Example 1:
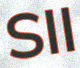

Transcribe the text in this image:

SII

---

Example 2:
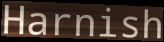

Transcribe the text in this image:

Harnish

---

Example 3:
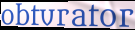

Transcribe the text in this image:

obturator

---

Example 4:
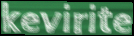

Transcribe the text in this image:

kevirite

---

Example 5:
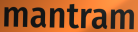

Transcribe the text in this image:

mantram